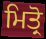
ਮਿਤ੍ਰੋ